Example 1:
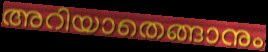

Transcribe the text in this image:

അറിയാതെങ്ങാനും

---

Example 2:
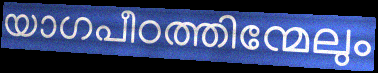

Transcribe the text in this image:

യാഗപീഠത്തിന്മേലും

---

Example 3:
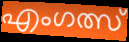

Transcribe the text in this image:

എംഗത്സ്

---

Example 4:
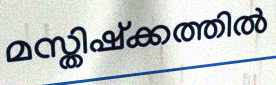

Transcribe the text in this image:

മസ്തിഷ്ക്കത്തിൽ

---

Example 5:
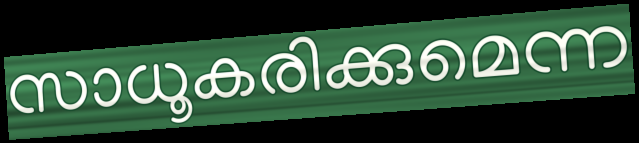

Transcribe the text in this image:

സാധൂകരിക്കുമെന്ന